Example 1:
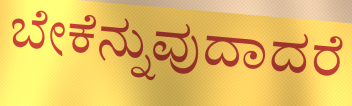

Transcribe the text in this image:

ಬೇಕೆನ್ನುವುದಾದರೆ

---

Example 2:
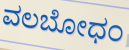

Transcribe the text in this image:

ವಲಬೋಧಂ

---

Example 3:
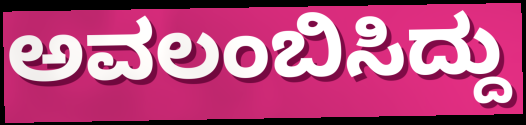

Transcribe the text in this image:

ಅವಲಂಬಿಸಿದ್ದು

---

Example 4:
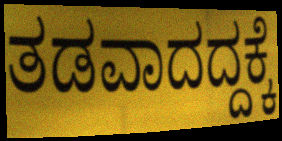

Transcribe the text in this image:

ತಡವಾದದ್ದಕ್ಕೆ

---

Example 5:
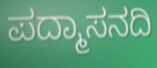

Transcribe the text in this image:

ಪದ್ಮಾಸನದಿ